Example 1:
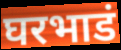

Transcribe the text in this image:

घरभाडं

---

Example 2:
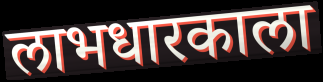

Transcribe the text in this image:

लाभधारकाला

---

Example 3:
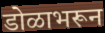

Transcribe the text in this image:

डोळाभरून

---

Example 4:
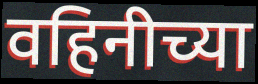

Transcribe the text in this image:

वहिनीच्या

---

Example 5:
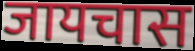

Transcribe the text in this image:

जायचास